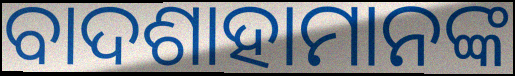
ବାଦଶାହାମାନଙ୍କ